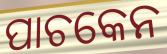
ପାଚକେନ